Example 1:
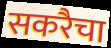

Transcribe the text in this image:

सकरैचा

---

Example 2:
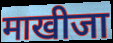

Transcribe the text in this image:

माखीजा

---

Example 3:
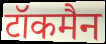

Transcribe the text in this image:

टॉकमैन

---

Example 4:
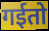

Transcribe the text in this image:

गईतो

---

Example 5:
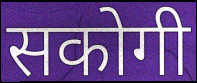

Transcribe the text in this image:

सकोगी